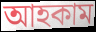
আহকাম